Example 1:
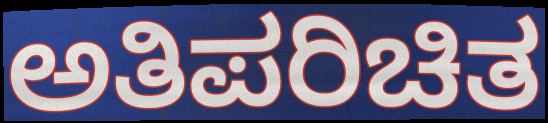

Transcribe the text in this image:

ಅತಿಪರಿಚಿತ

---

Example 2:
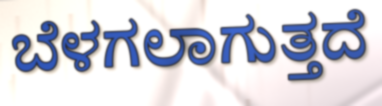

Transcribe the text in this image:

ಬೆಳಗಲಾಗುತ್ತದೆ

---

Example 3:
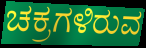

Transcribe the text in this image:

ಚಕ್ರಗಳಿರುವ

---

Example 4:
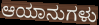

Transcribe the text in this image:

ಆಯಾನುಗಳು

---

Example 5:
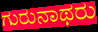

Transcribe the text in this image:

ಗುರುನಾಥರು